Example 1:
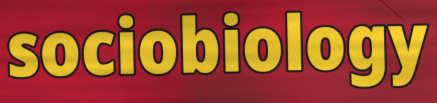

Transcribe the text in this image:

sociobiology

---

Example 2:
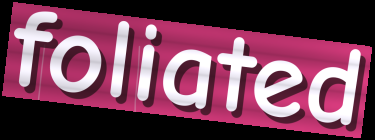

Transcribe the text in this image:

foliated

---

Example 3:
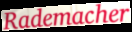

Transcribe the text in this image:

Rademacher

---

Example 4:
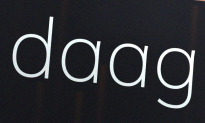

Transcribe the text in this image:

daag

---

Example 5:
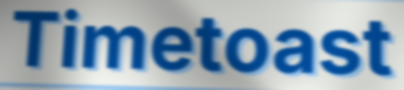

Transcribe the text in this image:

Timetoast